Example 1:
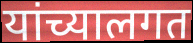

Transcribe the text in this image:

यांच्यालगत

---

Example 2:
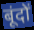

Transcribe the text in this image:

बूंदों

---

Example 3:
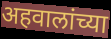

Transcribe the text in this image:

अहवालांच्या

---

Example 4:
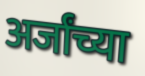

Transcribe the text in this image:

अर्जांच्या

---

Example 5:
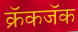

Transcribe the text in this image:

क्रॅकजॅक